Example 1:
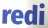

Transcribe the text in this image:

redi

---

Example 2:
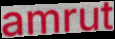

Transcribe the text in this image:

amrut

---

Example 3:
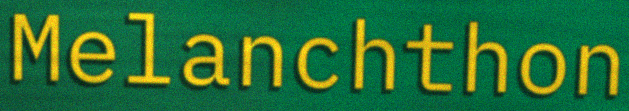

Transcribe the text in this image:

Melanchthon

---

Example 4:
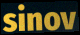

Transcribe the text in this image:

sinov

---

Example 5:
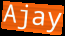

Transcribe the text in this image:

Ajay